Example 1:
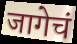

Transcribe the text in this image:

जागेचं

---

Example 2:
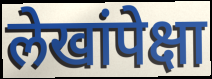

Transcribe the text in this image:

लेखांपेक्षा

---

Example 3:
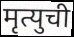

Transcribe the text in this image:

मृत्युची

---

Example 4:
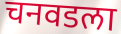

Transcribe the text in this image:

चनवडला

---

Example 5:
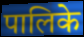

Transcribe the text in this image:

पालिके